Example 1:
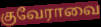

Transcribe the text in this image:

குவேராவை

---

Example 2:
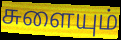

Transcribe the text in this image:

சுளையும்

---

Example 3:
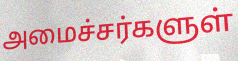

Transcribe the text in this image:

அமைச்சர்களுள்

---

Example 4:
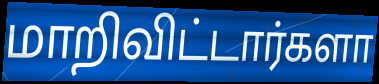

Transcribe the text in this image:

மாறிவிட்டார்களா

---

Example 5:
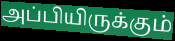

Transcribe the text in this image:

அப்பியிருக்கும்